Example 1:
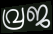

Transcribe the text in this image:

വ്രജ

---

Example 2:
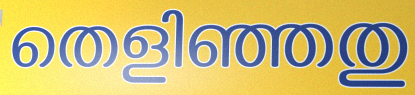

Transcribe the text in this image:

തെളിഞ്ഞതു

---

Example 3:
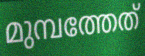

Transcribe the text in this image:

മുമ്പത്തേത്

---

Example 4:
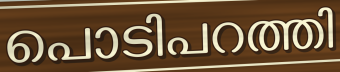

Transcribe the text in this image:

പൊടിപറത്തി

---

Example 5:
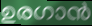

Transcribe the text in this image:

ഉരഗാൻ